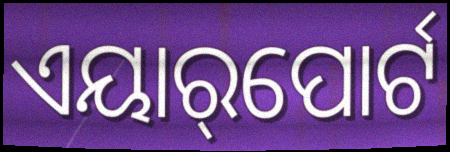
ଏୟାର୍‌ପୋର୍ଟ